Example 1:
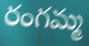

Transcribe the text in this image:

రంగమ్మ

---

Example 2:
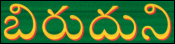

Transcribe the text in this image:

బిరుదుని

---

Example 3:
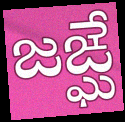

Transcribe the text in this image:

జఙ్ఘే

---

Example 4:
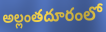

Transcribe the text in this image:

అల్లంతదూరంలో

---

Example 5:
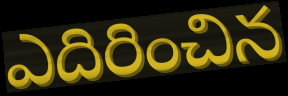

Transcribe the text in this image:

ఎదిరించిన